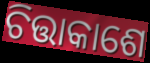
ଚିତ୍ତାକାଶେ